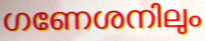
ഗണേശനിലും